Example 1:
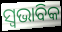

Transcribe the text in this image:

ସ୍ଵଭାବିକ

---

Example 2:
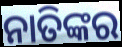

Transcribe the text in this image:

ନାତିଙ୍କର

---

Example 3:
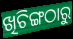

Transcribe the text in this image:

ଖିଚିଙ୍ଗଠାରୁ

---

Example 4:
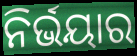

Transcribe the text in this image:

ନିର୍ଭୟାର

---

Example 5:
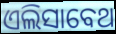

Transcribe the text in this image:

ଏଲିସାବେଥ